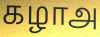
கழாஅ